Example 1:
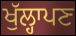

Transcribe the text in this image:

ਖੁੱਲ੍ਹਾਪਣ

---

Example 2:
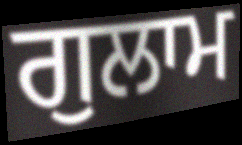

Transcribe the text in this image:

ਗੁਲਾਮ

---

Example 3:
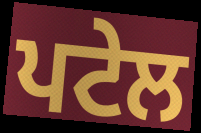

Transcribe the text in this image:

ਪਟੇਲ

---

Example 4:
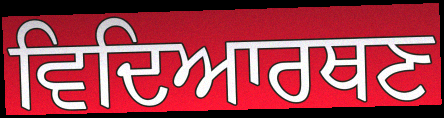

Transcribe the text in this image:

ਵਿਦਿਆਰਥਣ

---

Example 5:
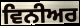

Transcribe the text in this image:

ਵਿਨੀਅਰ